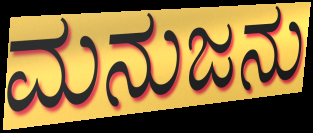
ಮನುಜನು